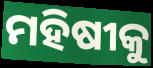
ମହିଷୀକୁ